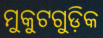
ମୁକୁଟଗୁଡ଼ିକ